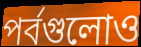
পর্বগুলোও